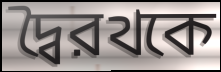
দ্বৈরথকে